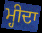
ਮ੍ਹੀਦਾ